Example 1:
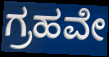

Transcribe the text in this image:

ಗ್ರಹವೇ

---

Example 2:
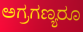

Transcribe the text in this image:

ಅಗ್ರಗಣ್ಯರೂ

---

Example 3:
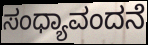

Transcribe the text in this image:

ಸಂಧ್ಯಾವಂದನೆ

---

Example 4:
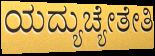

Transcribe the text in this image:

ಯದ್ಯುಚ್ಯೇತೇತಿ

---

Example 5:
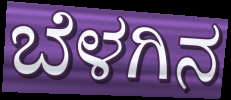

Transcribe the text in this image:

ಬೆಳಗಿನ